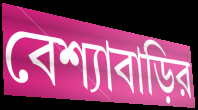
বেশ্যাবাড়ির